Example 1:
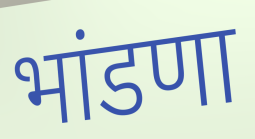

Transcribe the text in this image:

भांडणा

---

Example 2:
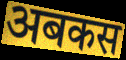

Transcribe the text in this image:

अबकस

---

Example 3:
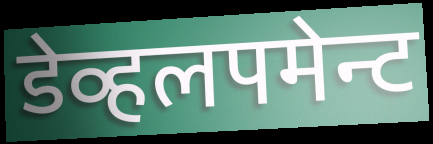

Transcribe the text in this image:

डेव्हलपमेन्ट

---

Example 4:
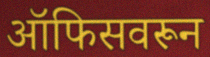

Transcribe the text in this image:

ऑफिसवरून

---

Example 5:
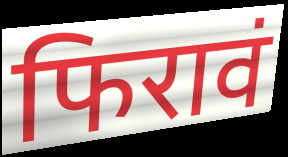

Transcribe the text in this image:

फिरावं